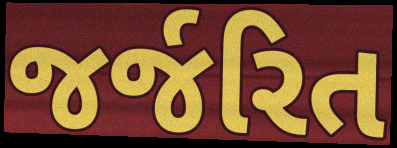
જર્જરિત